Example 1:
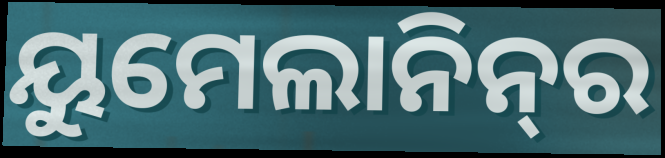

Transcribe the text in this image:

ୟୁମେଲାନିନ୍‌ର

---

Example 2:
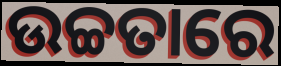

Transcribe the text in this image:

ଉଚ୍ଚତାରେ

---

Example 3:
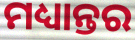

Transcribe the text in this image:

ମଧ୍ୟାନ୍ତର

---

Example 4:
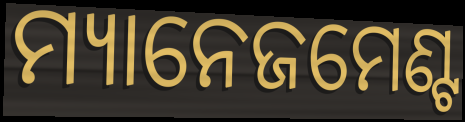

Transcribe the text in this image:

ମ୍ୟାନେଜମେଣ୍ଟ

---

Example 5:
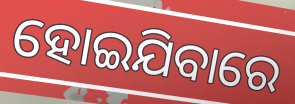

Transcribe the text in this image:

ହୋଇଯିବାରେ